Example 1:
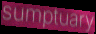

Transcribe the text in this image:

sumptuary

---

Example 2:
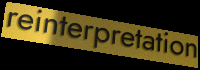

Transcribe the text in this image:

reinterpretation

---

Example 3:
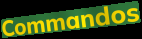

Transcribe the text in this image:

Commandos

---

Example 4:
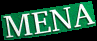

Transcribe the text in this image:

MENA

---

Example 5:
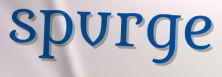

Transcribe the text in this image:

spurge